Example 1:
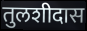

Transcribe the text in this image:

तुलशीदास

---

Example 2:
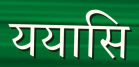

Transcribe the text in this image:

ययासि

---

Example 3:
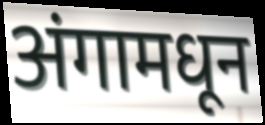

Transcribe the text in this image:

अंगामधून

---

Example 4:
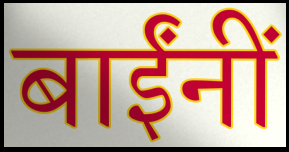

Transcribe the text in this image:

बाईंनीं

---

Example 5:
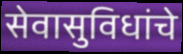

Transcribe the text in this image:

सेवासुविधांचे